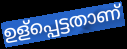
ഉള്പ്പെട്ടതാണ്